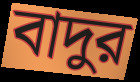
বাদুর